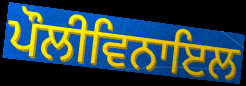
ਪੌਲੀਵਿਨਾਇਲ